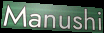
Manushi